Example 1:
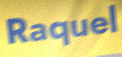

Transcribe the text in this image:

Raquel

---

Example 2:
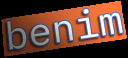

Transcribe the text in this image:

benim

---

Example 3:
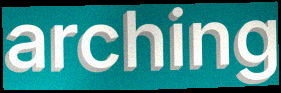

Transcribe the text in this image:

arching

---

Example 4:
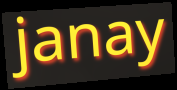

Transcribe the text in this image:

janay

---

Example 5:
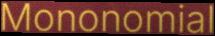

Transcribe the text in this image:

Mononomial